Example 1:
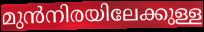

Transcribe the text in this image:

മുൻനിരയിലേക്കുള്ള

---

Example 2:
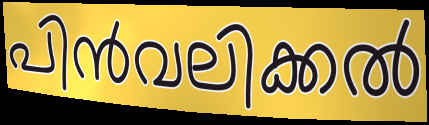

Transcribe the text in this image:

പിൻവലിക്കൽ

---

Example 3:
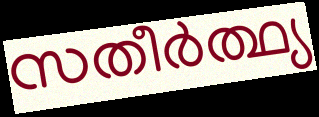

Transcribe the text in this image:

സതീർത്ഥ്യ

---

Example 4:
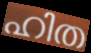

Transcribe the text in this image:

ഹിത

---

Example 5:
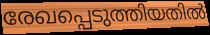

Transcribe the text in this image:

രേഖപ്പെടുത്തിയതിൽ